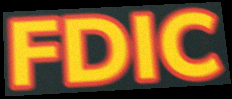
FDIC